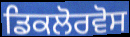
ਡਿਕਲੋਰਵੋਸ